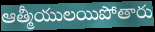
ఆత్మీయులయిపోతారు